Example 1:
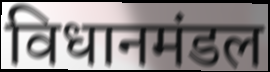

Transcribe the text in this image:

विधानमंडल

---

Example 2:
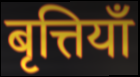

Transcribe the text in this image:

बृत्तियाँ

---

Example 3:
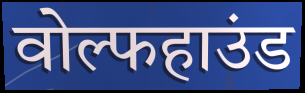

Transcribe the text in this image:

वोल्फहाउंड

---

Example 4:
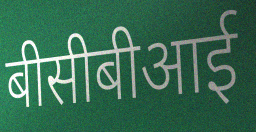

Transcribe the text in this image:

बीसीबीआई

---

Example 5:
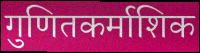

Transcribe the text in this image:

गुणितकर्माशिक